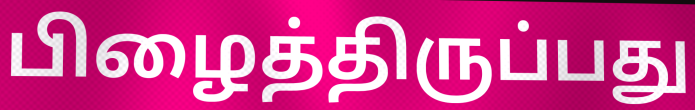
பிழைத்திருப்பது